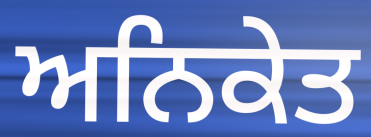
ਅਨਿਕੇਤ